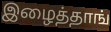
இழைத்தாங்